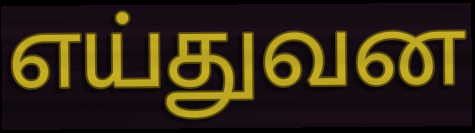
எய்துவன